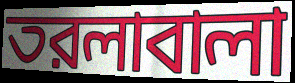
তরলাবালা